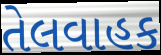
તેલવાહક